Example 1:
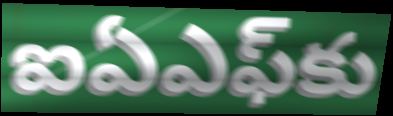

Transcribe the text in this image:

ఐఏఎఫ్‌కు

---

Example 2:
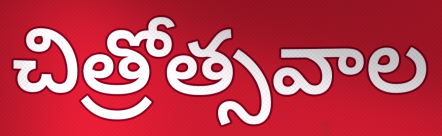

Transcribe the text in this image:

చిత్రోత్సవాల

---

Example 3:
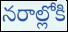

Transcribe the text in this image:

నరాల్లోకి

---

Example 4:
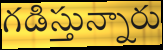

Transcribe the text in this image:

గడిస్తున్నారు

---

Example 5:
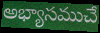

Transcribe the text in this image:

అభ్యాసముచే